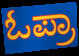
ಓಪ್ರಾ